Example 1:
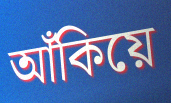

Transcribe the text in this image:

আঁকিয়ে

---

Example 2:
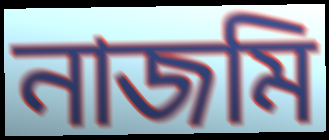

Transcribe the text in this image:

নাজমি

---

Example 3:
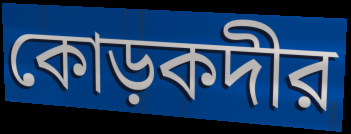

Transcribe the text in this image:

কোড়কদীর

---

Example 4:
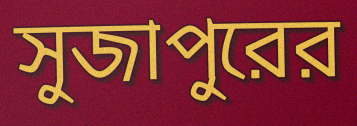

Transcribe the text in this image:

সুজাপুরের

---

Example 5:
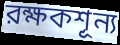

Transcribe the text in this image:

রক্ষকশূন্য